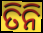
ତିନି